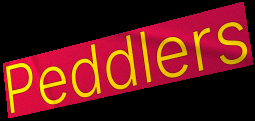
Peddlers